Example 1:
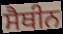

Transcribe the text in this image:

ਸੈਥੀਨ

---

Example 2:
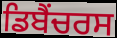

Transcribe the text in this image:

ਡਿਬੈਂਚਰਸ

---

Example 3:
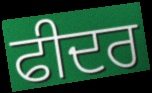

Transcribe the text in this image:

ਫੀਦਰ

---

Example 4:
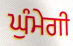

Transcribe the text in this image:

ਘੁੰਮੇਗੀ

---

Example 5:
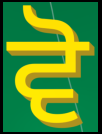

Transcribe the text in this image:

ਵੋ